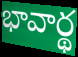
భావార్థ